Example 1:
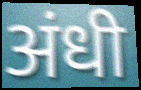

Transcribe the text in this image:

अंधी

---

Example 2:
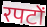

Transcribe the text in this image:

रपटों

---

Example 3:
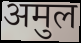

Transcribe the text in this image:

अमुल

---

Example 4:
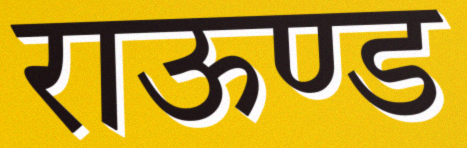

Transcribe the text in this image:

राऊण्ड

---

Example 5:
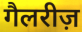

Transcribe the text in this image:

गैलरीज़